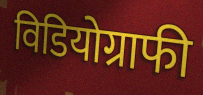
विडियोग्राफी